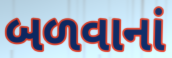
બળવાનાં